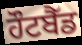
ਹੌਟਬੈੱਡ